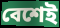
বেশেই